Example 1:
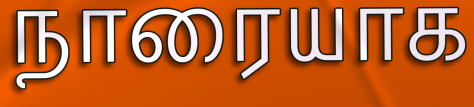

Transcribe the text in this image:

நாரையாக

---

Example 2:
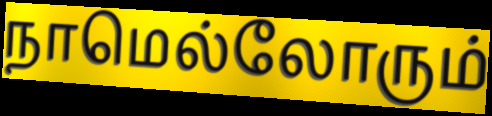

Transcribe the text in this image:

நாமெல்லோரும்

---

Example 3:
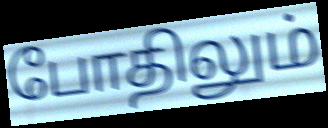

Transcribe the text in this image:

போதிலும்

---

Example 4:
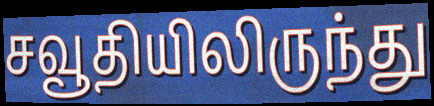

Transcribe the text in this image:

சவூதியிலிருந்து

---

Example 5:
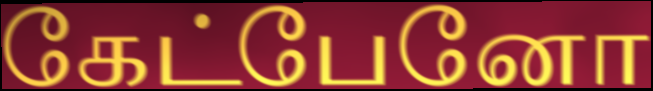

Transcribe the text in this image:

கேட்பேனோ